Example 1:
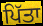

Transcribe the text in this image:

ਪਿੱਤਾ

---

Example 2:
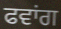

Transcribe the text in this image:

ਫਵਾਂਗ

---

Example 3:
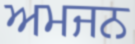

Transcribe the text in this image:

ਅਮਜਨ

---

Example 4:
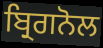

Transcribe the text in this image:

ਬ੍ਰਿਗਨੋਲ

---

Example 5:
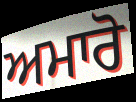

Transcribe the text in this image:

ਅਮਾਰੋ